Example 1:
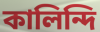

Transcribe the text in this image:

কালিন্দি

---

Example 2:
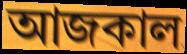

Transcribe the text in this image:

আজকাল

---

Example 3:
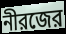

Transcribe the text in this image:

নীরজের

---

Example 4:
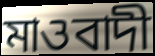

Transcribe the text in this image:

মাওবাদী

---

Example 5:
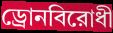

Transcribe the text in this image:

ড্রোনবিরোধী